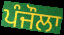
ਪੰਜੌਲਾ